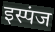
इस्पंज